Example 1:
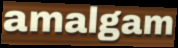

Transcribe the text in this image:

amalgam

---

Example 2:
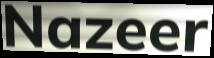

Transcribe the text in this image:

Nazeer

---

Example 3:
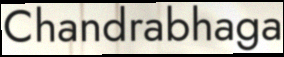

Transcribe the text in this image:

Chandrabhaga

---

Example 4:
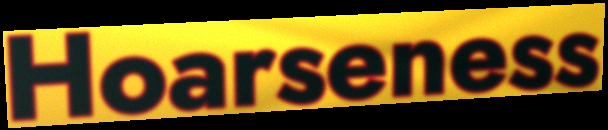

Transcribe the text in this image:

Hoarseness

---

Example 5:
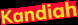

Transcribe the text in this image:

Kandiah